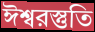
ঈশ্বরস্তুতি